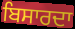
ਬਿਸਾਰਦਾ